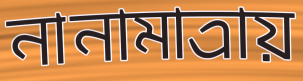
নানামাত্রায়